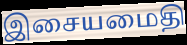
இசையமைதி